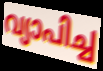
വ്യാപിച്ച